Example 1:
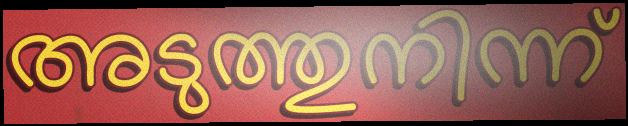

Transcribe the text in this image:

അടുത്തുനിന്ന്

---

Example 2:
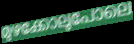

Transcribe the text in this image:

മുഴക്കോലുപോലെ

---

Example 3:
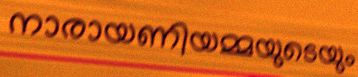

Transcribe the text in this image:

നാരായണിയമ്മയുടെയും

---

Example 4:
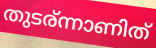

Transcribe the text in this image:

തുടര്ന്നാണിത്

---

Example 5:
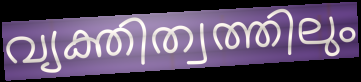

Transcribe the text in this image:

വ്യക്തിത്വത്തിലും